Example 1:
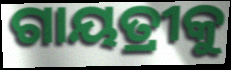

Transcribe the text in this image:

ଗାୟତ୍ରୀକୁ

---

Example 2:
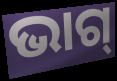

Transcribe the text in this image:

ଭାଗ୍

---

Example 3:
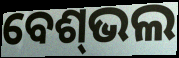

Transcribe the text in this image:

ବେଶ୍‌ଭଲ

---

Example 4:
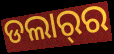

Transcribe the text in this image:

ଡଲାର୍‌ର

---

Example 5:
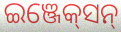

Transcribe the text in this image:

ଇଞ୍ଜେକ୍‍ସନ୍